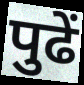
पुढें